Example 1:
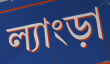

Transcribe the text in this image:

ল্যাংড়া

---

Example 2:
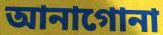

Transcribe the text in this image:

আনাগোনা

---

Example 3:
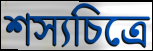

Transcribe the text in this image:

শস্যচিত্রে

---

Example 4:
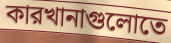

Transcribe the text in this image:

কারখানাগুলোতে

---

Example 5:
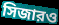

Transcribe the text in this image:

সিজারও